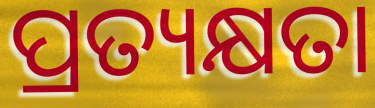
ପ୍ରତ୍ୟକ୍ଷତା